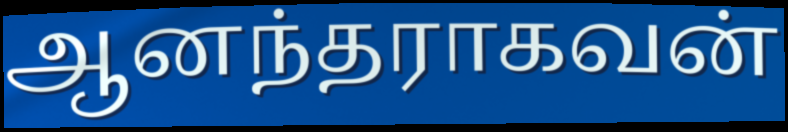
ஆனந்தராகவன்